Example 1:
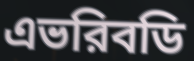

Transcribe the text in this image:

এভরিবডি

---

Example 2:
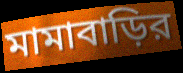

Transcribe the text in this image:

মামাবাড়ির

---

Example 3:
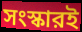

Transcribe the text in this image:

সংস্কারই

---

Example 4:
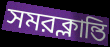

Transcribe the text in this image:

সমরক্লান্তি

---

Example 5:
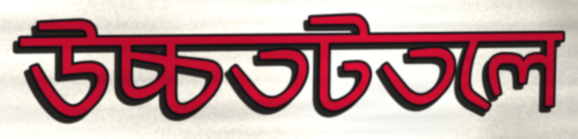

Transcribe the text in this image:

উচ্চতটতলে